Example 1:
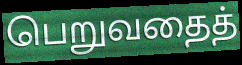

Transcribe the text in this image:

பெறுவதைத்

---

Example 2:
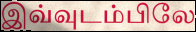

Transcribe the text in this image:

இவ்வுடம்பிலே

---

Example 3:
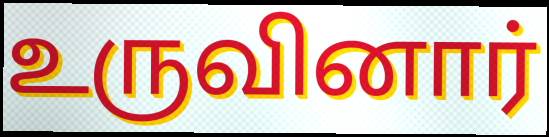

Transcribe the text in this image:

உருவினார்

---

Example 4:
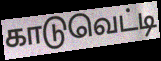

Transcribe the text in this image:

காடுவெட்டி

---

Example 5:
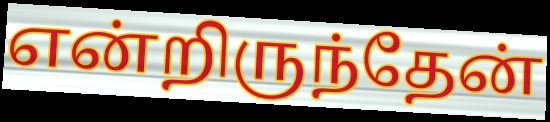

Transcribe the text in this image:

என்றிருந்தேன்